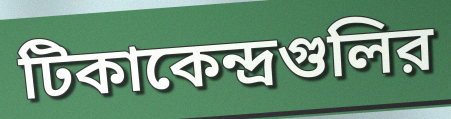
টিকাকেন্দ্রগুলির